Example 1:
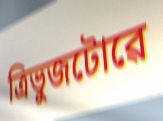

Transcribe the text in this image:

ত্ৰিভুজটোৱে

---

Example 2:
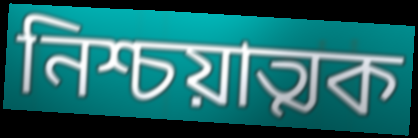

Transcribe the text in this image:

নিশ্চয়াত্মক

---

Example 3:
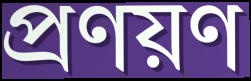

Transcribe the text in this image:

প্ৰণয়ণ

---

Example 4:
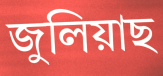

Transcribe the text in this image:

জুলিয়াছ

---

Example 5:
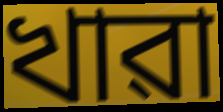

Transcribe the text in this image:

খাৱা